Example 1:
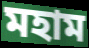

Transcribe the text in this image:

মহাম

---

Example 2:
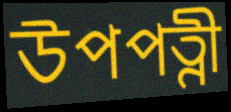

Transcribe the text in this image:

উপপত্নী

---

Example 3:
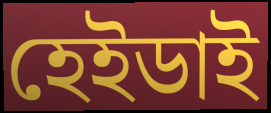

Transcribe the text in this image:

হেইডাই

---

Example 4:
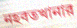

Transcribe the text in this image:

নহবতখানার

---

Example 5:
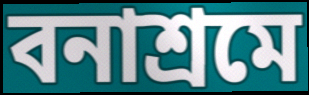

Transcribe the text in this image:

বনাশ্রমে